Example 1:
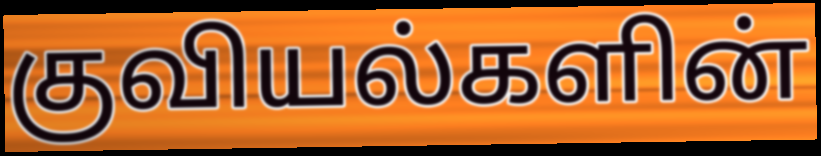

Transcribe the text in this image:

குவியல்களின்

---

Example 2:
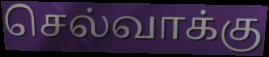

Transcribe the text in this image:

செல்வாக்கு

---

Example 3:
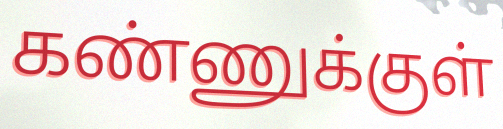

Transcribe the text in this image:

கண்ணுக்குள்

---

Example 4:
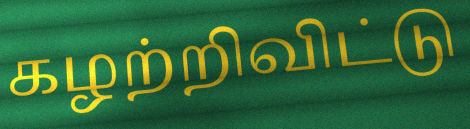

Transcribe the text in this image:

கழற்றிவிட்டு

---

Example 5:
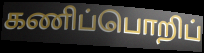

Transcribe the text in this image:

கணிப்பொறிப்